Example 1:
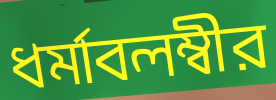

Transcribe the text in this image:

ধর্মাবলম্বীর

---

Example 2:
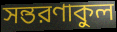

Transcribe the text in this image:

সন্তরণাকুল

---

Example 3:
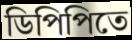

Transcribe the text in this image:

ডিপিপিতে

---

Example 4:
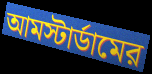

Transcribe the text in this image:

আমস্টার্ডামের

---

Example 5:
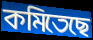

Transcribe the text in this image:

কমিতেছে